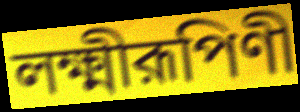
লক্ষ্মীরূপিণী